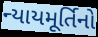
ન્યાયમૂર્તિનો